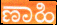
ಣಾಹಿ